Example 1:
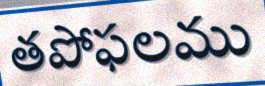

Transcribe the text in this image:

తపోఫలము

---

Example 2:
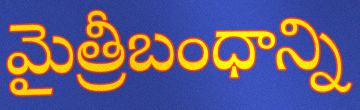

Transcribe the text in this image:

మైత్రీబంధాన్ని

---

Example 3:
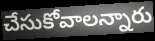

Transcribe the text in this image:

చేసుకోవాలన్నారు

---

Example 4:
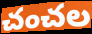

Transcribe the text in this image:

చంచల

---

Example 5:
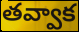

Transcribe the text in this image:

తవ్వాక